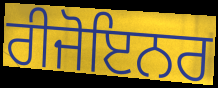
ਰੀਜੋਇਨਰ